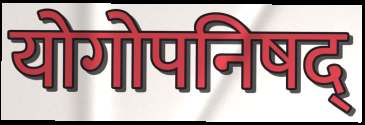
योगोपनिषद्